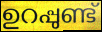
ഉറപ്പുണ്ട്